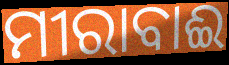
ମୀରାବାଈ